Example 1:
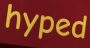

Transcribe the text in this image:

hyped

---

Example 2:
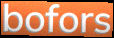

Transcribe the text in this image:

bofors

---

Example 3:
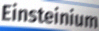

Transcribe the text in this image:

Einsteinium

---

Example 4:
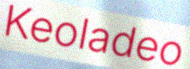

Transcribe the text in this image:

Keoladeo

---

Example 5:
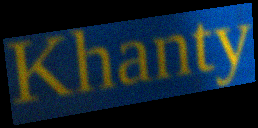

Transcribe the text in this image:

Khanty